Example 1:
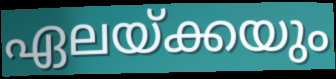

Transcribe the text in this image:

ഏലയ്ക്കയും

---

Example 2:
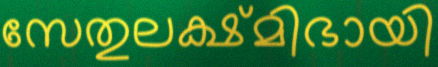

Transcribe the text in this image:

സേതുലക്ഷ്മിഭായി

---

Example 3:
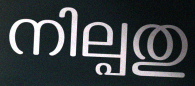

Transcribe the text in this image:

നില്പതു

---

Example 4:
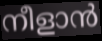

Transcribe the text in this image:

നീളാൻ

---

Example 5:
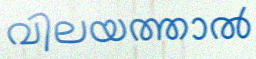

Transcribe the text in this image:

വിലയത്താൽ